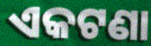
ଏକଟଣା